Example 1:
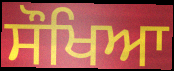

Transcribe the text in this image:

ਸੌਖਿਆ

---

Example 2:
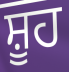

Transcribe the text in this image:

ਸ਼ੂਹ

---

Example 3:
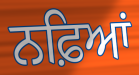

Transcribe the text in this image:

ਨਫ਼ਿਆਂ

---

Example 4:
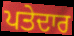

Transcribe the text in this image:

ਪਤੇਦਾਰ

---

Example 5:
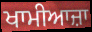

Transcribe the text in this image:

ਖਾਮੀਆਜ਼ਾ